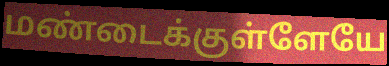
மண்டைக்குள்ளேயே